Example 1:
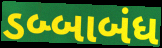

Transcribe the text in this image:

ડબ્બાબંધ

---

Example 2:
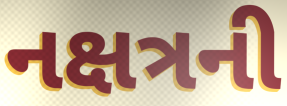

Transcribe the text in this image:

નક્ષત્રની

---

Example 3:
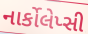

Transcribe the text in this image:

નાર્કોલેપ્સી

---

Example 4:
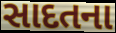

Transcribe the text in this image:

સાદતના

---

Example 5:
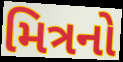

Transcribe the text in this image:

મિત્રનો